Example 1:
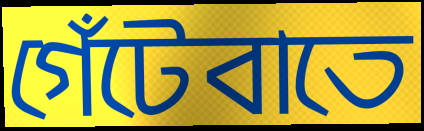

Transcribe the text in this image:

গেঁটেবাতে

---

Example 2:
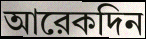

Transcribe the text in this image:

আরেকদিন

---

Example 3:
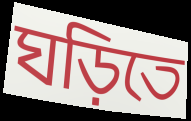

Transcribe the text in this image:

ঘড়িতে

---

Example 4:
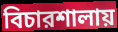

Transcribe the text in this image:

বিচারশালায়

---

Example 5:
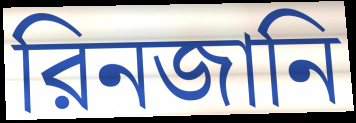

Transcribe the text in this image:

রিনজানি